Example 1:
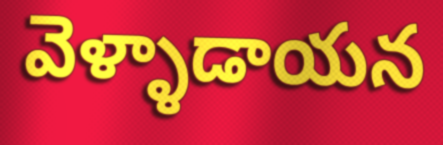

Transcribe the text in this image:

వెళ్ళాడాయన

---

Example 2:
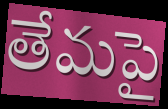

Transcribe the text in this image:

తేమపై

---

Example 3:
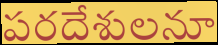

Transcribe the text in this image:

పరదేశులనూ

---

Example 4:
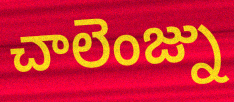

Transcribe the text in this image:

చాలెంజ్ను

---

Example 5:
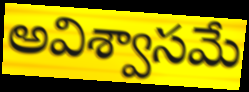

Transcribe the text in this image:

అవిశ్వాసమే